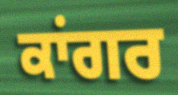
ਕਾਂਗਰ